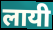
लायी